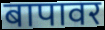
बापावर